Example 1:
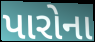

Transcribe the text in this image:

પારોના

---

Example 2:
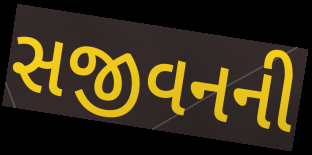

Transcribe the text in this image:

સજીવનની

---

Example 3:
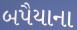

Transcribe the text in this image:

બપૈયાના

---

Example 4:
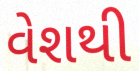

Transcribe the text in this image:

વેશથી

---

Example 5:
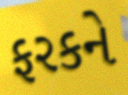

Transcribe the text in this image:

ફરકને